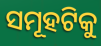
ସମୂହଟିକୁ